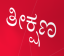
ತೀಕ್ಷಣ